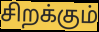
சிறக்கும்